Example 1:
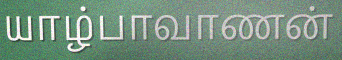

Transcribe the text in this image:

யாழ்பாவாணன்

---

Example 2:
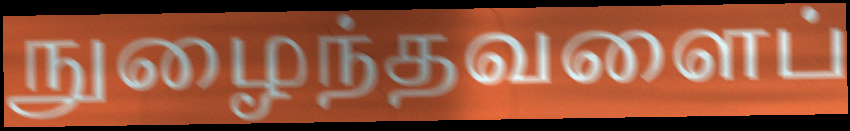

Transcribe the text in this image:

நுழைந்தவளைப்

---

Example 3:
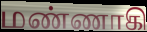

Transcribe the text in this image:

மண்ணாகி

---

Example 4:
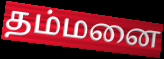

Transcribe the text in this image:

தம்மனை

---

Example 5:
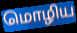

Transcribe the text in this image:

மொழிய